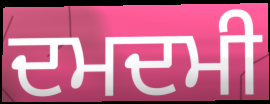
ਦਮਦਮੀ